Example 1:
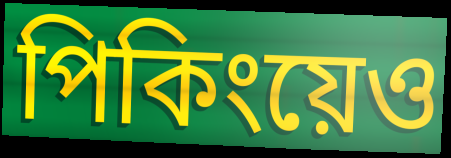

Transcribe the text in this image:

পিকিংয়েও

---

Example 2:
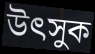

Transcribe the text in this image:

উৎসুক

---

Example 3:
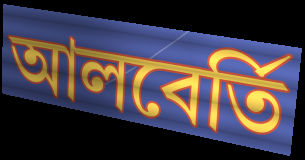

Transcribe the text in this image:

আলবের্তি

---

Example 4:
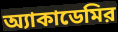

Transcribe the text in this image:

অ্যাকাডেমির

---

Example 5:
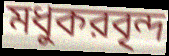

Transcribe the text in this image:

মধুকরবৃন্দ